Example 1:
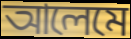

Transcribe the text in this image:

আলেমে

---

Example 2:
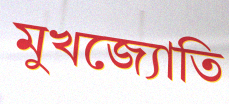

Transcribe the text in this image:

মুখজ্যোতি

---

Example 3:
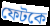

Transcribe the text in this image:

ফেটকে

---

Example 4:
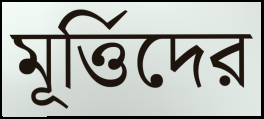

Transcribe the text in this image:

মূর্ত্তিদের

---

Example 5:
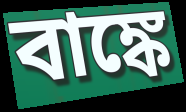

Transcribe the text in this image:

বাঙ্কে